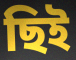
ছিই